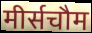
मीर्सचौम